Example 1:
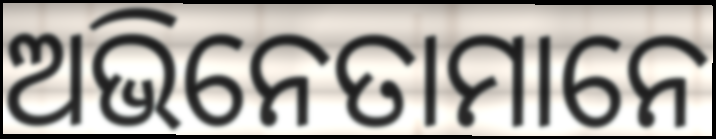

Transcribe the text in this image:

ଅଭିନେତାମାନେ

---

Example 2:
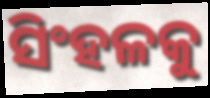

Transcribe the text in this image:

ସିଂହଳକୁ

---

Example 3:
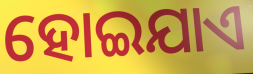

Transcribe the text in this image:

ହୋଇଯାଏ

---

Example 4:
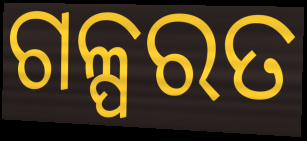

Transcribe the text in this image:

ଗଳ୍ପରତ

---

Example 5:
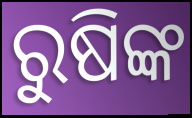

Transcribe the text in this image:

ରୁଷିଙ୍କ